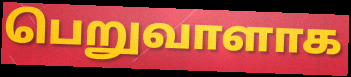
பெறுவாளாக